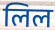
लिल